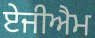
ਏਜੀਐਮ